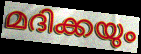
മദിക്കയും